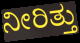
ನೀರಿತ್ತು